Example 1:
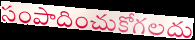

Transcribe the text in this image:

సంపాదించుకోగలదు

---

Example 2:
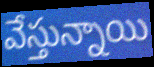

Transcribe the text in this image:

వేస్తున్నాయి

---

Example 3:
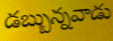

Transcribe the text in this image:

డబ్బున్నవాడు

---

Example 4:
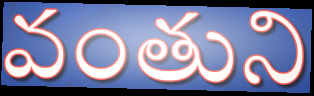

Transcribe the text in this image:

వంతుని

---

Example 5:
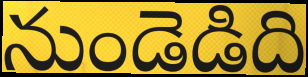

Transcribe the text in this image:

నుండెడిది